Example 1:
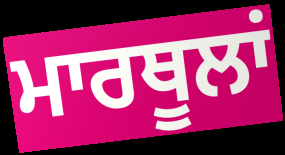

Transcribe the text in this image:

ਮਾਰਥੂਲਾਂ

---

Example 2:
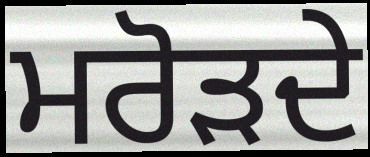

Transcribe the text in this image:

ਮਰੋੜਦੇ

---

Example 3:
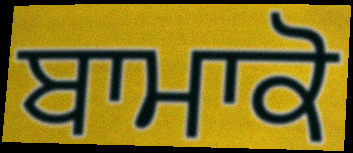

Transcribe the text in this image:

ਬਾਮਾਕੋ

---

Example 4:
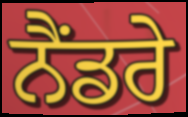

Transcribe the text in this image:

ਨੈਂਡਰੇ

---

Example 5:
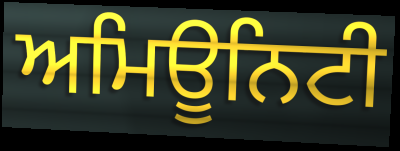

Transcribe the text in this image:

ਅਮਿਊਨਿਟੀ